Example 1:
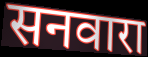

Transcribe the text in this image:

सनवारा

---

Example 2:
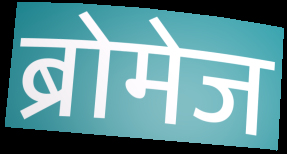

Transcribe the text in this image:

ब्रोमेज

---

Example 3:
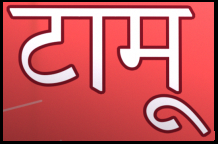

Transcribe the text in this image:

टामू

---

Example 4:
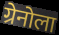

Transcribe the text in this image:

ग्रेनोला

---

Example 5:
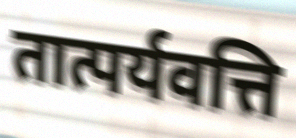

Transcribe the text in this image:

तात्पर्यवत्ति